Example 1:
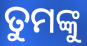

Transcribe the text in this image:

ତୁମଙ୍କୁ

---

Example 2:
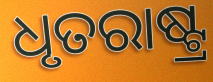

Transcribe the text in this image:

ଧୃତରାଷ୍ଟ୍ର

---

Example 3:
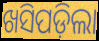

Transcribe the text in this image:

ଖସିପଡ଼ିଲା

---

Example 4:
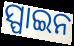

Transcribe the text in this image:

ସ୍ପାଇନ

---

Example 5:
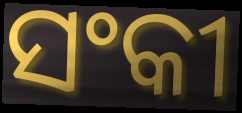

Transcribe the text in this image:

ସଂକୀ